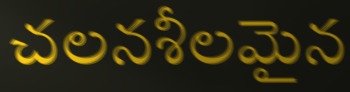
చలనశీలమైన